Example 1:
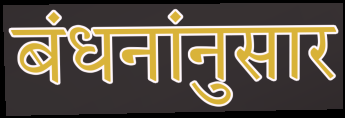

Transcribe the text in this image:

बंधनांनुसार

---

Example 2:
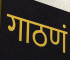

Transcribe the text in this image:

गाठणं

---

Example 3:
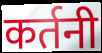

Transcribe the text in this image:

कर्तनी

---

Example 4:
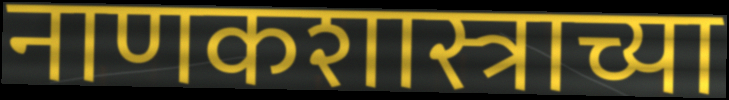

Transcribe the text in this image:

नाणकशास्त्राच्या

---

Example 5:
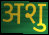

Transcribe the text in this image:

अशु